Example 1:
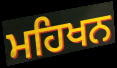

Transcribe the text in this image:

ਮਹਿਖਨ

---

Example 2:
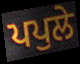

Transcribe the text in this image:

ਪਪੁਲੇ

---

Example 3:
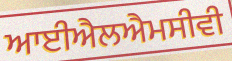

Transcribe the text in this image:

ਆਈਐਲਐਮਸੀਵੀ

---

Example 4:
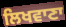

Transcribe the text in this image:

ਲਿਖਵਾਣਾ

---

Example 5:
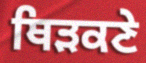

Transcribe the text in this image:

ਥਿੜਕਣੇ